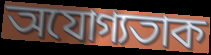
অযোগ্যতাক